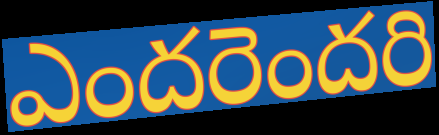
ఎందరెందరి